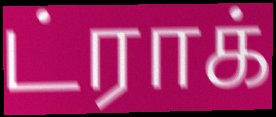
ட்ராக்